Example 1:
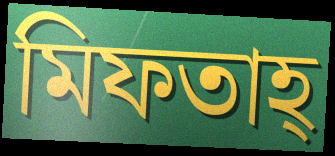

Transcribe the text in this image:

মিফতাহ্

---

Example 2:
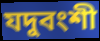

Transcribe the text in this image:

যদুবংশী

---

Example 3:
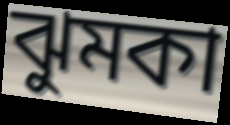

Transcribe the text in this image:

ঝুমকা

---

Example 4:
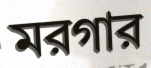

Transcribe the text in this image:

মরগার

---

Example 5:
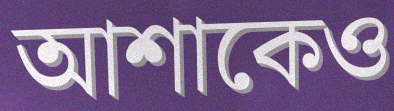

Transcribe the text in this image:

আশাকেও